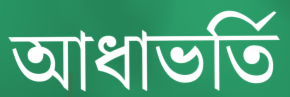
আধাভর্তি